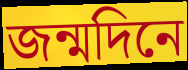
জন্মদিনে